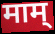
माम्